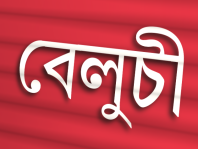
বেলুচী